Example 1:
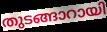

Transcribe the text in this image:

തുടങ്ങാറായി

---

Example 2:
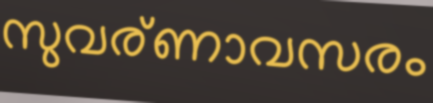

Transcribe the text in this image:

സുവര്ണാവസരം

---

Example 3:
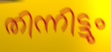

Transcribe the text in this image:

തിന്നിട്ടും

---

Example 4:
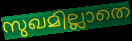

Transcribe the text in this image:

സുഖമില്ലാതെ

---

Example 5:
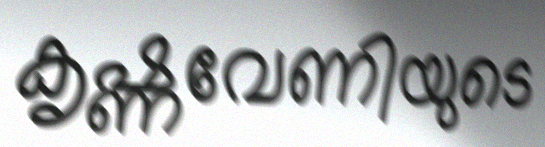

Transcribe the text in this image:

കൃഷ്ണവേണിയുടെ